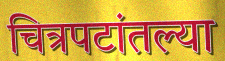
चित्रपटांतल्या